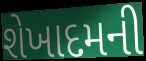
શેખાદમની